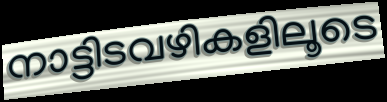
നാട്ടിടവഴികളിലൂടെ